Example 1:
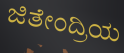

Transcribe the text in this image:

ಜಿತೇಂದ್ರಿಯ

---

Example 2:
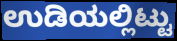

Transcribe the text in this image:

ಉಡಿಯಲ್ಲಿಟ್ಟು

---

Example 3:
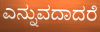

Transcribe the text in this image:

ಎನ್ನುವದಾದರೆ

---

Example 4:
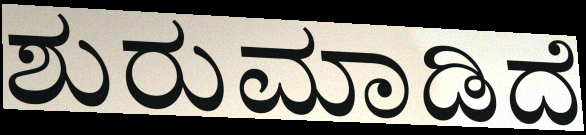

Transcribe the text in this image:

ಶುರುಮಾಡಿದೆ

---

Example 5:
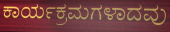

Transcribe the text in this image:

ಕಾರ್ಯಕ್ರಮಗಳಾದವು